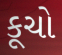
કૂચો